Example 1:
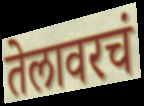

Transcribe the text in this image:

तेलावरचं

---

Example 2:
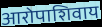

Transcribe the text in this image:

आरोपाशिवाय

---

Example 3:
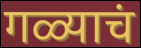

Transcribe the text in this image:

गळ्याचं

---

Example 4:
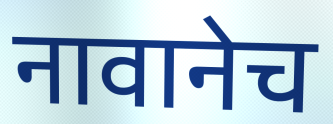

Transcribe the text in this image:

नावानेच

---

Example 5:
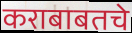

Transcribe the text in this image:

कराबाबतचे